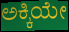
ಅಕ್ಕಿಯೇ